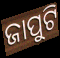
ଜାପୁଟି